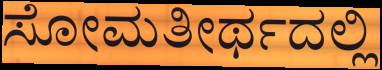
ಸೋಮತೀರ್ಥದಲ್ಲಿ